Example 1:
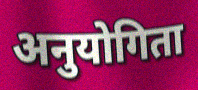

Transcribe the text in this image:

अनुयोगिता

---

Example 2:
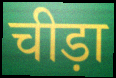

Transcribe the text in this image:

चीड़ा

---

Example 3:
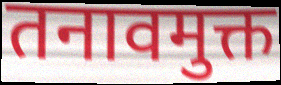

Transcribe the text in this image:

तनावमुक्त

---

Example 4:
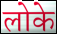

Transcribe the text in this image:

लोके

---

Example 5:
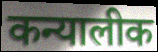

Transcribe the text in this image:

कन्यालीक